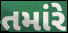
તમાંરે